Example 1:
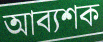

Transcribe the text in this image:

আব্যশক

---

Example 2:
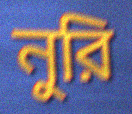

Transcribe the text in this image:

নুরি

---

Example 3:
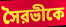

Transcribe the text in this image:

সৈরভীকে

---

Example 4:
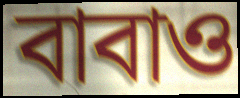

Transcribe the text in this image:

বাবাও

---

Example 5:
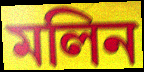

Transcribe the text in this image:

মলিন